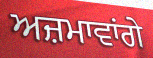
ਅਜ਼ਮਾਵਾਂਗੇ